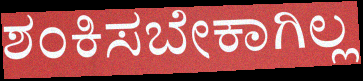
ಶಂಕಿಸಬೇಕಾಗಿಲ್ಲ